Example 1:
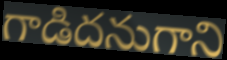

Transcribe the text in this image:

గాడిదనుగాని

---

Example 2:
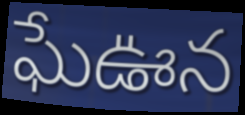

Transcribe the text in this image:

ఘేఊన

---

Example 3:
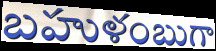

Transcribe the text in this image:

బహుళంబుగా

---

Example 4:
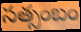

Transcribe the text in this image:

సత్సంబం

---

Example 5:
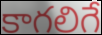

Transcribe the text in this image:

కాగలిగే